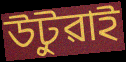
উটুৱাই